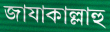
জাযাকাল্লাহু